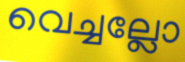
വെച്ചല്ലോ